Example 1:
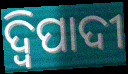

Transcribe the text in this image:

ଦ୍ୱିପାଦୀ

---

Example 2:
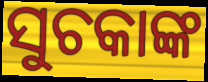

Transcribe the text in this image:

ସୁଚକାଙ୍କ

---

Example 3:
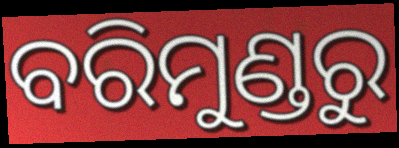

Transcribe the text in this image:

ବରିମୁଣ୍ଡରୁ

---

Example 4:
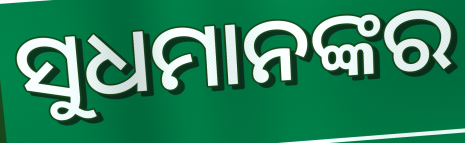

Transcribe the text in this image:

ସୁଧମାନଙ୍କର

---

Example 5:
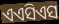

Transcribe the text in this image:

ଏଏସିଏସ